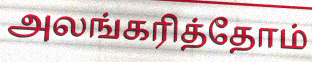
அலங்கரித்தோம்